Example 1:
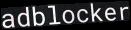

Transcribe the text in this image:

adblocker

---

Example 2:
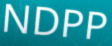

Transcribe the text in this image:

NDPP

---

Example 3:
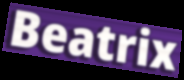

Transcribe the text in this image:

Beatrix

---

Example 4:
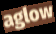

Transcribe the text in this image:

aglow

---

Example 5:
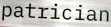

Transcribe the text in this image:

patrician